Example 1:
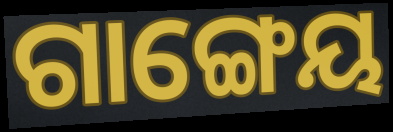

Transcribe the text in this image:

ଗାଙ୍ଗେୟ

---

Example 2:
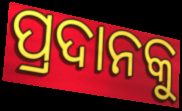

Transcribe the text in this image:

ପ୍ରଦାନକୁ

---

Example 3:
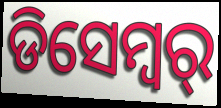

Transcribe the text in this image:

ଡିସେମ୍ବର୍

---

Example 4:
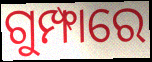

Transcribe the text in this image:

ଗୁମ୍ଫାରେ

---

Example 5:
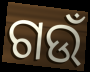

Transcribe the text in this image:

ଗଉଁ